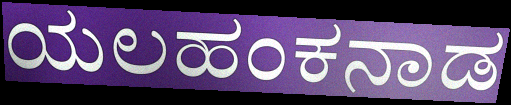
ಯಲಹಂಕನಾಡ